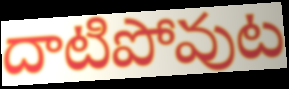
దాటిపోవుట